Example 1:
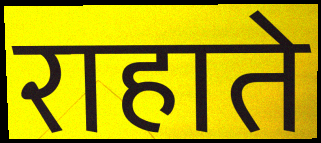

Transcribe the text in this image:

राहाते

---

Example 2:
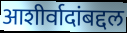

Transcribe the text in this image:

आशीर्वादांबद्दल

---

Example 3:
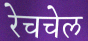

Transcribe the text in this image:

रेचचेल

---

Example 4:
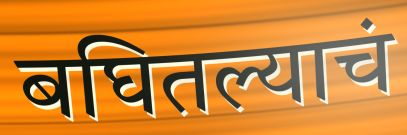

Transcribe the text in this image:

बघितल्याचं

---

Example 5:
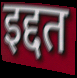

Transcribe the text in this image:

इद्दत